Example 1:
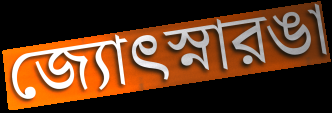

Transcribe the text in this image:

জ্যোৎস্নারঙা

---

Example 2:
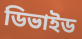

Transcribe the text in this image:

ডিভাইড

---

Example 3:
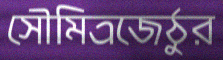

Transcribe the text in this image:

সৌমিত্রজেঠুর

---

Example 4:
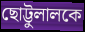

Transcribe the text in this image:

ছোট্টুলালকে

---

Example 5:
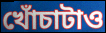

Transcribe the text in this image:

খোঁচাটাও